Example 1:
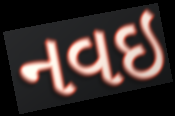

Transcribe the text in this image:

નવઇ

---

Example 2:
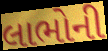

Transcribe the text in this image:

લાભોની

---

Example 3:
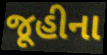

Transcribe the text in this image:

જૂહીના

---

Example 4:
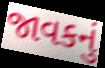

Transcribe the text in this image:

જાવકનું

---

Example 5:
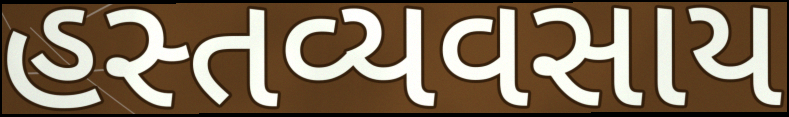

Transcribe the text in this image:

હસ્તવ્યવસાય